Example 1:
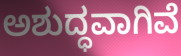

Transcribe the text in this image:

ಅಶುದ್ಧವಾಗಿವೆ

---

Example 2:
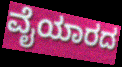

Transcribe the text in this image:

ವೈಯಾರದ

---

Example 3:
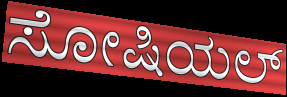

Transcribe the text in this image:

ಸೋಷಿಯಲ್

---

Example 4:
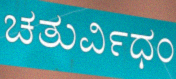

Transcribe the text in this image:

ಚತುರ್ವಿಧಂ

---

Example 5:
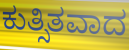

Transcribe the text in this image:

ಕುತ್ಸಿತವಾದ